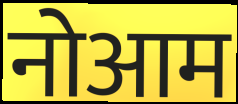
नोआम